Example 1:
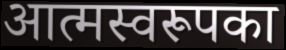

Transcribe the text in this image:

आत्मस्वरूपका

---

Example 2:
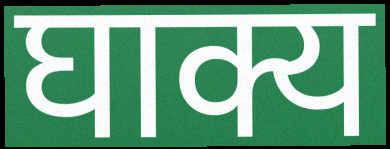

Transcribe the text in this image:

घाक्य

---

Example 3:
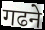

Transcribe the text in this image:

गढने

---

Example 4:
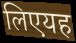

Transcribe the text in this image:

लिएयह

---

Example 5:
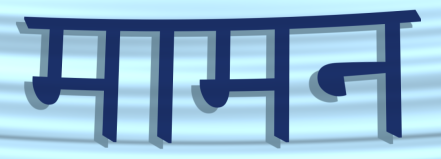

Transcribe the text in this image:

मामन